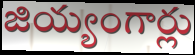
జియ్యంగార్లు